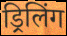
ड्रिलिंग